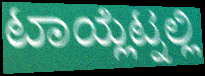
ಟಾಯ್ಲೆಟ್ನಲ್ಲಿ